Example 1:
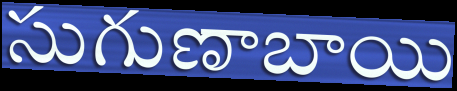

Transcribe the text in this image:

సుగుణాబాయి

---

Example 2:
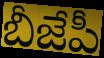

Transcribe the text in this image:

బీజేపీ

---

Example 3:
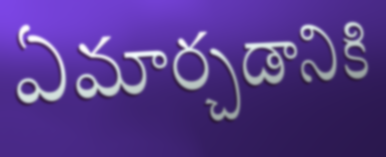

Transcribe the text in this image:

ఏమార్చడానికి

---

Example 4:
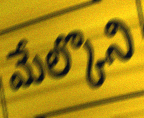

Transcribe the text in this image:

మేల్కొని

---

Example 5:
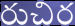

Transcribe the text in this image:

రుచిర